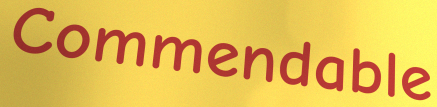
Commendable